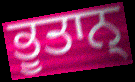
ਭੂਤਾਨ੍